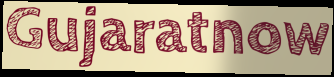
Gujaratnow